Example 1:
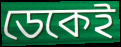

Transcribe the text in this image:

ডেকেই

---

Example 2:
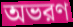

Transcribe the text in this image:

অভরণ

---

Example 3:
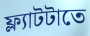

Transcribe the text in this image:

ফ্ল্যাটটাতে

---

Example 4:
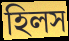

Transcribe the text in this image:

হিলস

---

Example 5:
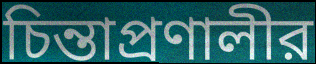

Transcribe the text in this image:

চিন্তাপ্রণালীর